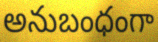
అనుబంధంగా